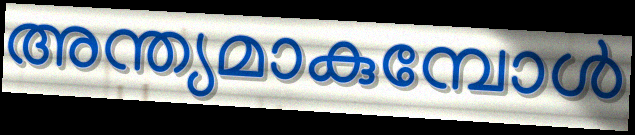
അന്ത്യമാകുമ്പോൾ